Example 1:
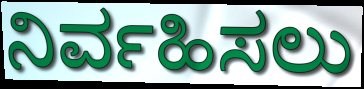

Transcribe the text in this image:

ನಿರ್ವಹಿಸಲು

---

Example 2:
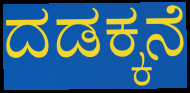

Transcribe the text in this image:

ದಡಕ್ಕನೆ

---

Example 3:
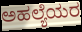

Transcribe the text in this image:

ಅಹಲ್ಯೆಯರ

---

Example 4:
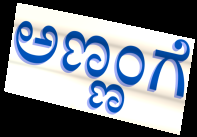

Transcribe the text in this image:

ಅಣ್ಣಂಗೆ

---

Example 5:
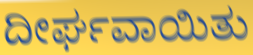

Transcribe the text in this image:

ದೀರ್ಘವಾಯಿತು